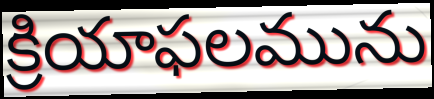
క్రియాఫలమును